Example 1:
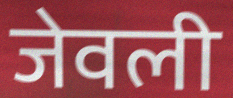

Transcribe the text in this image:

जेवली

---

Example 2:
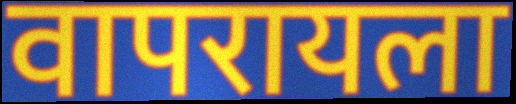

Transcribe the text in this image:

वापरायला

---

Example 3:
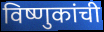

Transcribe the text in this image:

विष्णुकांची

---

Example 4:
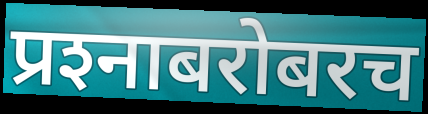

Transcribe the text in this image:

प्रश्‍नाबरोबरच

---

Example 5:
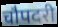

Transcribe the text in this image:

चौपदरी